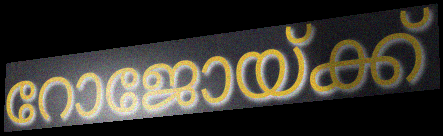
റോജോയ്ക്ക്